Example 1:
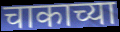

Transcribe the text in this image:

चाकाच्या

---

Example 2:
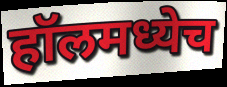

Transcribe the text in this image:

हॉलमध्येच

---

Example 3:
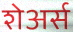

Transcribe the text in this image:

शेअर्स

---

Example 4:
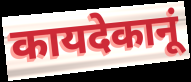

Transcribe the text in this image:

कायदेकानूं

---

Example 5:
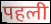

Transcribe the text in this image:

पहली